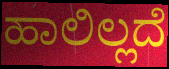
ಹಾಲಿಲ್ಲದೆ